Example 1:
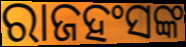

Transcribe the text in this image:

ରାଜହଂସଙ୍କ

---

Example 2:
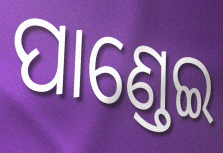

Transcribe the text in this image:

ପାଣ୍ଡେଇ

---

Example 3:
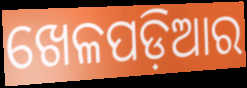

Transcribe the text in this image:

ଖେଳପଡ଼ିଆର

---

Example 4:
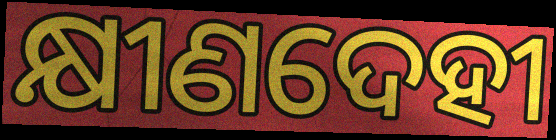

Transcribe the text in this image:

କ୍ଷୀଣଦେହୀ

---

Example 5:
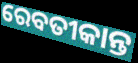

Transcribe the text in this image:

ରେବତୀକାନ୍ତ